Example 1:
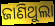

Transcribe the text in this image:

ଜାଣିଥୁଲା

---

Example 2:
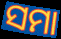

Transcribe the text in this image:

ସମା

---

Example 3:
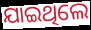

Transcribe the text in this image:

ଯାଇଥିଲେ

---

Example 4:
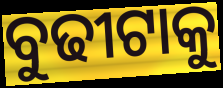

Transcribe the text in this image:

ବୁଢୀଟାକୁ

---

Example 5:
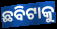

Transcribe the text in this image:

ଛବିଟାକୁ